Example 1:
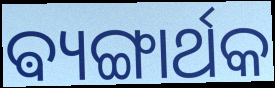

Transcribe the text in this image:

ଵ୍ୟଙ୍ଗାର୍ଥକ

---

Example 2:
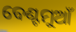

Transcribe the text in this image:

ବେଣ୍ଟମୁଆଁ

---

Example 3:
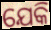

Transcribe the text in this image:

ଯେକି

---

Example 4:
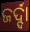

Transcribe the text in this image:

ଜର୍ଦ୍ଦା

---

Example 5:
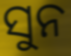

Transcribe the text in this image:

ସୁନ